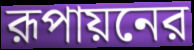
রূপায়নের